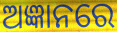
ଅଜ୍ଞାନରେ